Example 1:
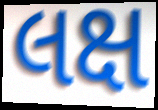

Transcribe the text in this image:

લક્ષ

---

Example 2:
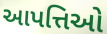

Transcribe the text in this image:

આપત્તિઓ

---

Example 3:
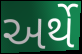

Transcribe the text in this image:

અર્થે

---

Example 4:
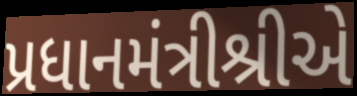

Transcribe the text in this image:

પ્રધાનમંત્રીશ્રીએ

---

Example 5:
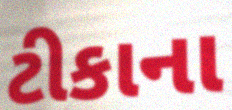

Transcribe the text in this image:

ટીકાના